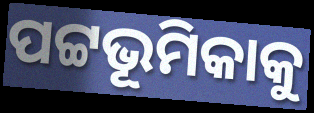
ପଟ୍ଟଭୂମିକାକୁ